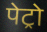
पेट्रो